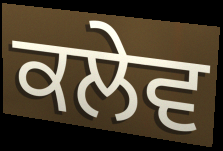
ਕਲੇਵ